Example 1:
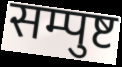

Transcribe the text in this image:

सम्पुष्ट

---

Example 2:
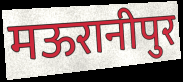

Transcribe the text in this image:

मऊरानीपुर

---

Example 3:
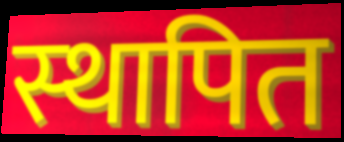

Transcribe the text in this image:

स्‍थापित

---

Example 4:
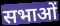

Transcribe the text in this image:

सभाओं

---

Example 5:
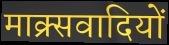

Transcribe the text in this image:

माक्र्सवादियों